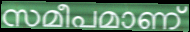
സമീപമാണ്